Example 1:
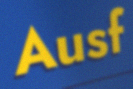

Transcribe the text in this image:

Ausf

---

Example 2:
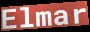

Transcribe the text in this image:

Elmar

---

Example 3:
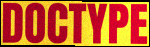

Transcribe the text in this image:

DOCTYPE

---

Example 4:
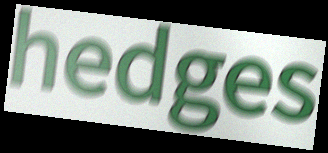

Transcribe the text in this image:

hedges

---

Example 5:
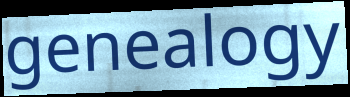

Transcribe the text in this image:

genealogy